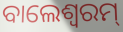
ବାଲେଶ୍ବରମ୍